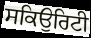
ਸਕਿਉਰਿਟੀ